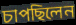
চাপছিলেন